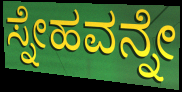
ಸ್ನೇಹವನ್ನೇ